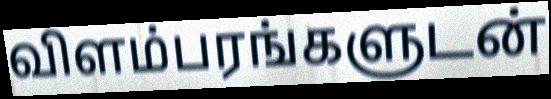
விளம்பரங்களுடன்